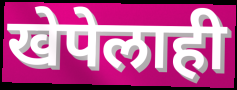
खेपेलाही